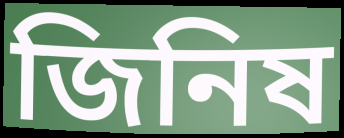
জিনিষ